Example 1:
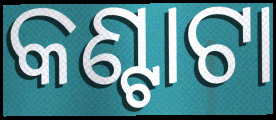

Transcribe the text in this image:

କଣ୍ଟାଟା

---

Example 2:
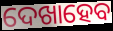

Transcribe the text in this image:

ଦେଖାହେବ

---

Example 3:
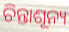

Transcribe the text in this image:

ଚିନ୍ତାଶୂନ୍ୟ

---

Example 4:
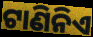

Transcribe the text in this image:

ଟାଣିନିଏ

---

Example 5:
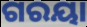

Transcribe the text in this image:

ଗରୟା